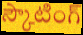
స్కౌటింగ్